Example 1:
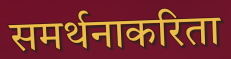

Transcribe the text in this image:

समर्थनाकरिता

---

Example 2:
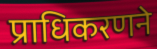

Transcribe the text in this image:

प्राधिकरणने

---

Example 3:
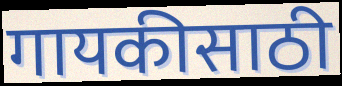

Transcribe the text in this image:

गायकीसाठी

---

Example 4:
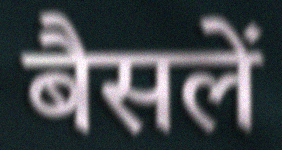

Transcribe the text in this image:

बैसलें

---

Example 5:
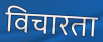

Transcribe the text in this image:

विचारता